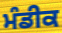
ਮੰਡੀਕ